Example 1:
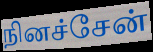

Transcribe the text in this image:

நினச்சேன்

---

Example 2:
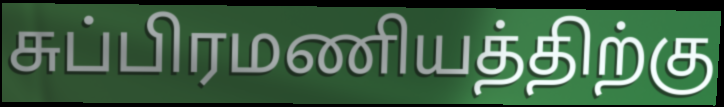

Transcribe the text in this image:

சுப்பிரமணியத்திற்கு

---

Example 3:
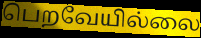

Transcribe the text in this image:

பெறவேயில்லை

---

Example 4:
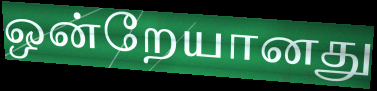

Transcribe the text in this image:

ஒன்றேயானது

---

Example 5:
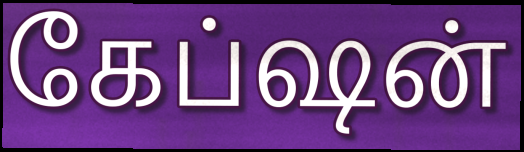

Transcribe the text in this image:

கேப்ஷன்